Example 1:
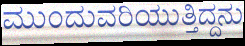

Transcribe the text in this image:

ಮುಂದುವರಿಯುತ್ತಿದ್ದನು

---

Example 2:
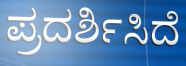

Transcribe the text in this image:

ಪ್ರದರ್ಶಿಸಿದೆ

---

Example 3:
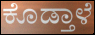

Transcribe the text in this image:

ಕೊಡ್ತಾಳೆ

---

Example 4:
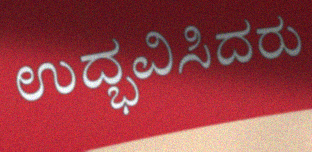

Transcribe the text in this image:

ಉದ್ಭವಿಸಿದರು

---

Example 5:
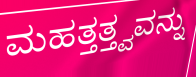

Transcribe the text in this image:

ಮಹತ್ತತ್ತ್ವವನ್ನು